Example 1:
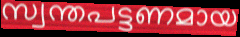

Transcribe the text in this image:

സ്വന്തപട്ടണമായ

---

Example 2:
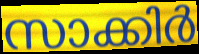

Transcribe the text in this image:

സാക്കിർ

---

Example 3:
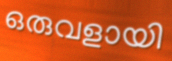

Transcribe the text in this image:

ഒരുവളായി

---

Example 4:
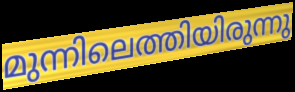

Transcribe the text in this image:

മുന്നിലെത്തിയിരുന്നു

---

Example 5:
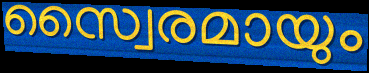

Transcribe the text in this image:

സ്വൈരമായും